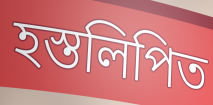
হস্তলিপিত